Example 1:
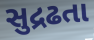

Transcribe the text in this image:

સુદ્રઢતા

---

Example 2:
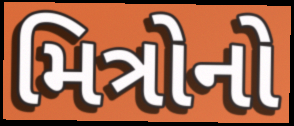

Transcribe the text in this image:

મિત્રોનો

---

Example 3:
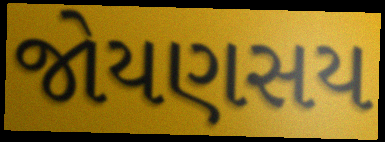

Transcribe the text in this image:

જોયણસય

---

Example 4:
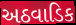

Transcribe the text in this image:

અઠવાડિક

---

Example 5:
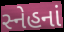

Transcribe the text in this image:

સ્નેહનાં